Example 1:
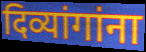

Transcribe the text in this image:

दिव्यांगांना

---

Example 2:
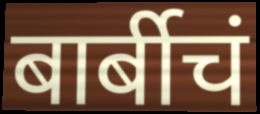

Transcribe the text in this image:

बार्बीचं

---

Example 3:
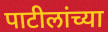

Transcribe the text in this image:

पाटीलांच्या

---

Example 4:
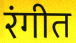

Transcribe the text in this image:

रंगीत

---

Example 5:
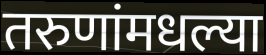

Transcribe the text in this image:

तरुणांमधल्या